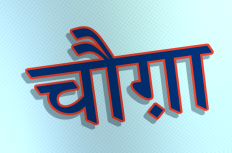
चौग़ा